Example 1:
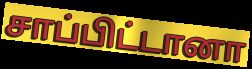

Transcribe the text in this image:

சாப்பிட்டானா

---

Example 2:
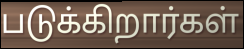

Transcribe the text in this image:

படுக்கிறார்கள்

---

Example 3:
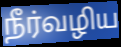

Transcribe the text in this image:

நீர்வழிய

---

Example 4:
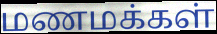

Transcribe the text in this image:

மணமக்கள்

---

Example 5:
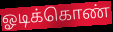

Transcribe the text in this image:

ஓடிக்கொண்